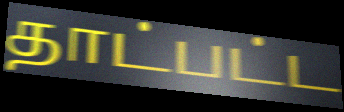
தாட்பட்ட